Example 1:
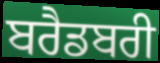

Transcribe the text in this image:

ਬਰੈਡਬਰੀ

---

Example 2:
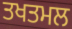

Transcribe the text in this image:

ਤਖਤਮਲ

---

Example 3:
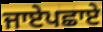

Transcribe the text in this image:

ਜਾਏਪਛਾਏ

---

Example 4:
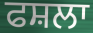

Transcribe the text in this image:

ਫਸ਼ਲਾ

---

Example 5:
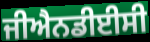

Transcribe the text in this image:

ਜੀਐਨਡੀਈਸੀ